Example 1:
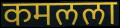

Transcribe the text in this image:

कमलला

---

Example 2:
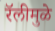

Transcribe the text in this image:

रॅलीमुळे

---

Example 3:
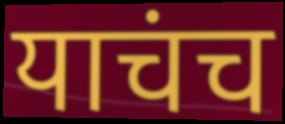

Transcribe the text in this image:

याचंच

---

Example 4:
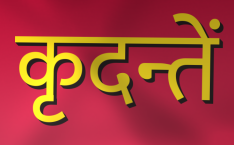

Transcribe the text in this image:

कृदन्तें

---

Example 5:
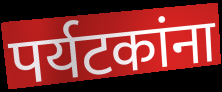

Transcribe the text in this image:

पर्यटकांना